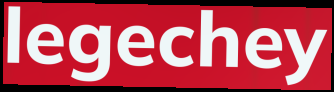
legechey